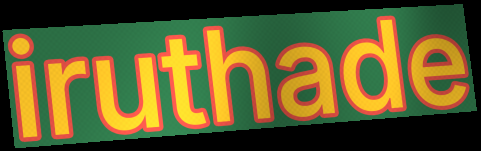
iruthade